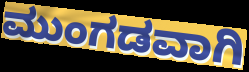
ಮುಂಗಡವಾಗಿ